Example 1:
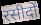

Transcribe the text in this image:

रसीदों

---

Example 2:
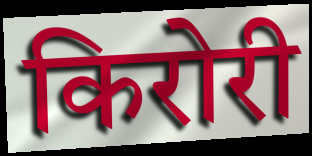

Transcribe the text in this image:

किरोरी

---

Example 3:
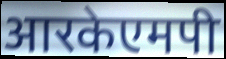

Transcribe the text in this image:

आरकेएमपी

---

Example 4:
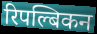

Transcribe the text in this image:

रिपल्बिकन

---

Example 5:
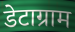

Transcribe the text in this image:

डेटाग्राम